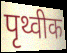
पृथ्वीक